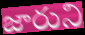
జారుని